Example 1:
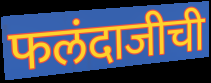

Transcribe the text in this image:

फलंदाजीची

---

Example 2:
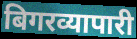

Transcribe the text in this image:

बिगरव्यापारी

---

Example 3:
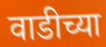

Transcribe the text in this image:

वाडीच्या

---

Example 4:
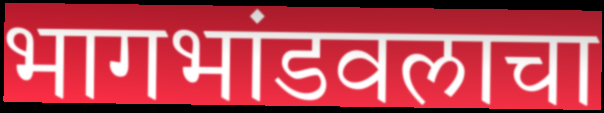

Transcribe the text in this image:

भागभांडवलाचा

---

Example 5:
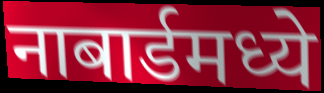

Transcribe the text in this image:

नाबार्डमध्ये